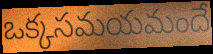
ఒక్కసమయమందే